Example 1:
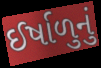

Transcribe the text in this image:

ઈર્ષાળુનું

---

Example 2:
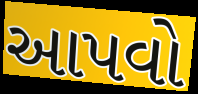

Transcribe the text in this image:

આપવો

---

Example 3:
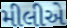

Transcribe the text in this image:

મીલીએ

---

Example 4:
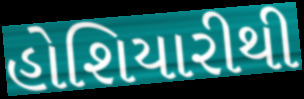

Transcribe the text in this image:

હોશિયારીથી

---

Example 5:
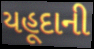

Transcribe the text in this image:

યહૂદાની